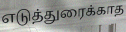
எடுத்துரைக்காத